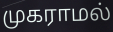
முகராமல்